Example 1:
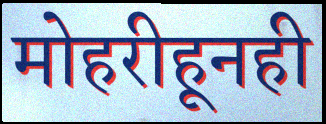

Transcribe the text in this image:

मोहरीहूनही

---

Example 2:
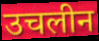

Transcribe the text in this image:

उचलीन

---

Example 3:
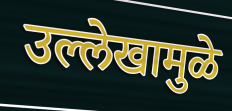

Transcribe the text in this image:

उल्लेखामुळे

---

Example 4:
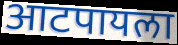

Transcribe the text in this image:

आटपायला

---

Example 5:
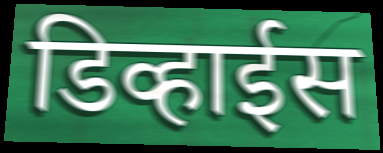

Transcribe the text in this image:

डिव्हाईस